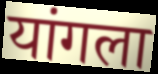
यांगला